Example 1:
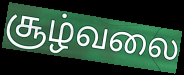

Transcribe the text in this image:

சூழ்வலை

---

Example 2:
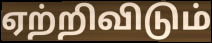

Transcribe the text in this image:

ஏற்றிவிடும்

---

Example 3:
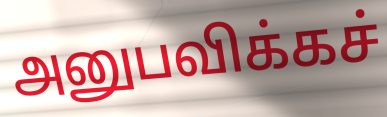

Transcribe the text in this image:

அனுபவிக்கச்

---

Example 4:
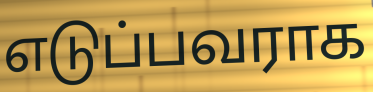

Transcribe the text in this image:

எடுப்பவராக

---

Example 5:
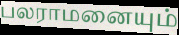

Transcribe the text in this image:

பலராமனையும்